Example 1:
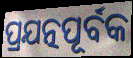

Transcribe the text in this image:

ପ୍ରଯତ୍ନପୂର୍ବକ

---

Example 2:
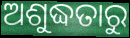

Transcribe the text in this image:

ଅଶୁଦ୍ଧତାରୁ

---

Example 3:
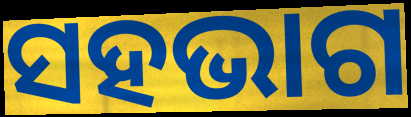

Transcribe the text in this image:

ସହଭାଗ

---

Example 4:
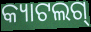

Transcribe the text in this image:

କ୍ୟାଟଲଗ୍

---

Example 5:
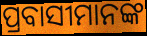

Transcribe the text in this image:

ପ୍ରବାସୀମାନଙ୍କ